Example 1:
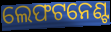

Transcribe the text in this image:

ଲେଫଟନେଣ୍ଟ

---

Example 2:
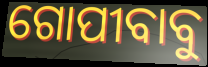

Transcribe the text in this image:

ଗୋପୀବାବୁ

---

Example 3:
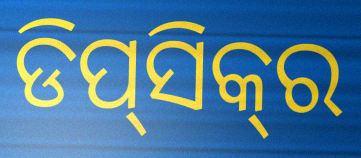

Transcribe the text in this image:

ଡିପ୍‌ସିକ୍‌ର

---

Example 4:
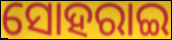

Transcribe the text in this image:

ସୋହରାଇ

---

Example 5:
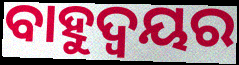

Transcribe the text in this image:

ବାହୁଦ୍ୱୟର